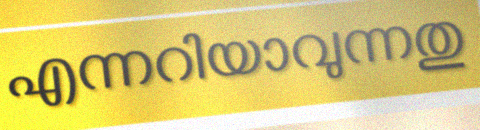
എന്നറിയാവുന്നതു